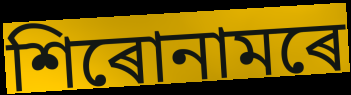
শিৰোনামৰে